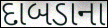
દાબડાના